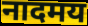
नादमय